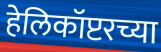
हेलिकॉप्टरच्या